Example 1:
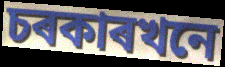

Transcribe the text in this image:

চৰকাৰখনে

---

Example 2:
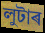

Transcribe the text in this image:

লুটাৰ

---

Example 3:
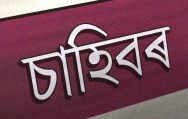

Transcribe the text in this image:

চাহিবৰ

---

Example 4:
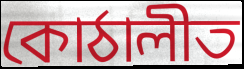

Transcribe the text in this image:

কোঠালীত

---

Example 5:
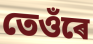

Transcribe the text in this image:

তেওঁৰে